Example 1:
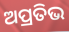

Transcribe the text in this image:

ଅପ୍ରତିଭ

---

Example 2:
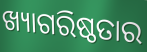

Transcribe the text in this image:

ଖ୍ୟାଗରିଷ୍ଠତାର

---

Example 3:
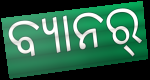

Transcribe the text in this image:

ବ୍ୟାନର୍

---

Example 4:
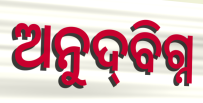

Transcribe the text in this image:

ଅନୁଦ୍‌ବିଗ୍ନ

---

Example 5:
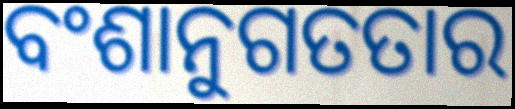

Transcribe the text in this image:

ବଂଶାନୁଗତତାର